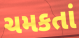
ચમકતાં